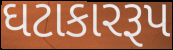
ઘટાકારરૂપ